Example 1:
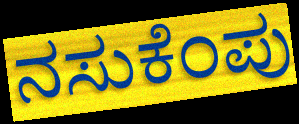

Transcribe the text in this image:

ನಸುಕೆಂಪು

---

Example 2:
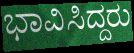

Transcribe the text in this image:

ಭಾವಿಸಿದ್ದರು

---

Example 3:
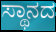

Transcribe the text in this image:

ಸ್ಥಾನದ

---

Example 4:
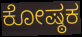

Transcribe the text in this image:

ಕೋಷ್ಠಕ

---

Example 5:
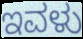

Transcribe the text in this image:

ಇವಳು